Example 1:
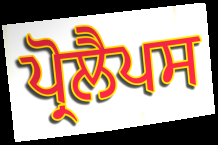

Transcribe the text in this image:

ਪ੍ਰੋਲੈਪਸ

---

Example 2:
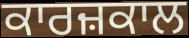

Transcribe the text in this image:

ਕਾਰਜ਼ਕਾਲ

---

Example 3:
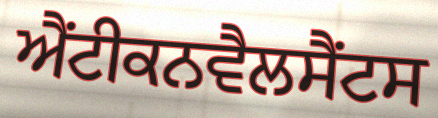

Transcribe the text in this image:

ਐਂਟੀਕਨਵੈਲਸੈਂਟਸ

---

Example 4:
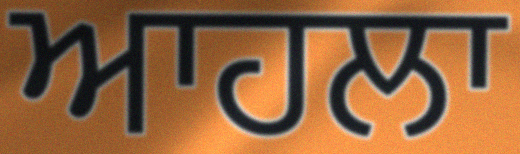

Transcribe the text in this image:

ਆਹਲਾ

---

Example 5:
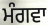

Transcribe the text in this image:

ਮੰਗਵਾ